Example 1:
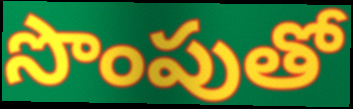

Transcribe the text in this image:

సొంపుతో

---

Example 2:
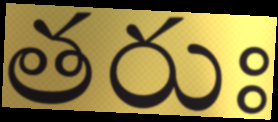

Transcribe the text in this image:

తరుః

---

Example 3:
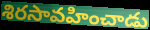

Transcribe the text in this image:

శిరసావహించాడు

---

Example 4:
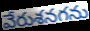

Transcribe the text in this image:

వేరుశనగను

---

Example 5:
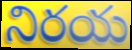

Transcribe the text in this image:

నిరయ